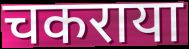
चकराया